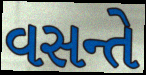
વસન્તે